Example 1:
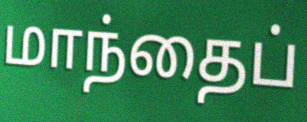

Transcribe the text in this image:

மாந்தைப்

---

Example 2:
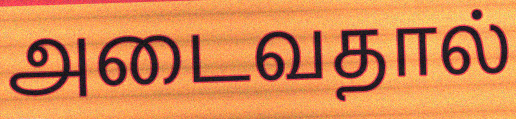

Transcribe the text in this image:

அடைவதால்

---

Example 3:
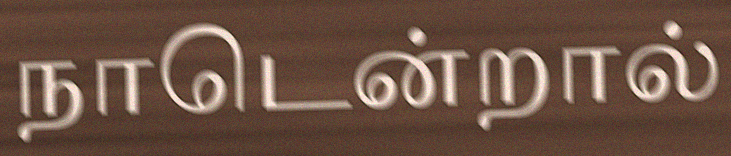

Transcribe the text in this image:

நாடென்றால்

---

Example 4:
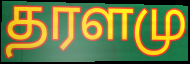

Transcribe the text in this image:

தரளமு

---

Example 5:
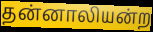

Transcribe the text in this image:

தன்னாலியன்ற